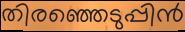
തിരഞ്ഞെടുപ്പിൻ